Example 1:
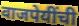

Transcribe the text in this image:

वाजपेयींची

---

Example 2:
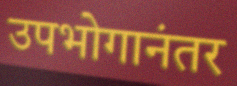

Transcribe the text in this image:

उपभोगानंतर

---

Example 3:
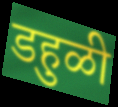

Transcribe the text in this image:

डहुळी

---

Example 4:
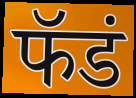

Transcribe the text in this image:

फॅडं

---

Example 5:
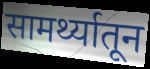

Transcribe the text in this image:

सामर्थ्यातून